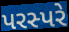
પરસ્પરે